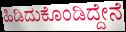
ಹಿಡಿದುಕೊಂಡಿದ್ದೇನೆ